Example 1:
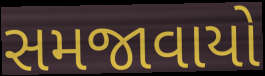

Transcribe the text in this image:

સમજાવાયો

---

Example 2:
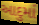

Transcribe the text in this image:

આદુમાં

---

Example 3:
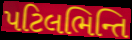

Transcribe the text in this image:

પટિલભિન્તિ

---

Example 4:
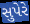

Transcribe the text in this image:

સુપેરે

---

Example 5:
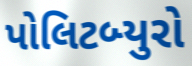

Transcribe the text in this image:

પોલિટબ્યુરો